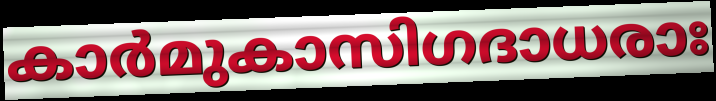
കാർമുകാസിഗദാധരാഃ